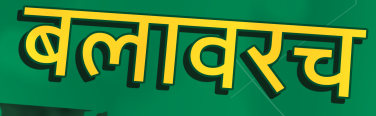
बलावरच